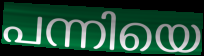
പന്നിയെ